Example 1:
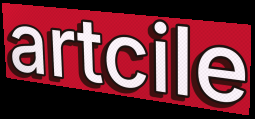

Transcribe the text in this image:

artcile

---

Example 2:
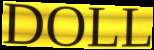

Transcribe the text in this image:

DOLL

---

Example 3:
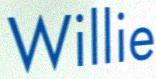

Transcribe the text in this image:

Willie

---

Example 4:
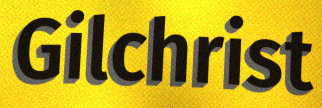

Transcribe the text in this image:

Gilchrist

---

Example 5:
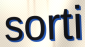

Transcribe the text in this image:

sorti